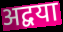
अद्वया